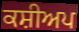
ਕਸ਼ੀਅਪ